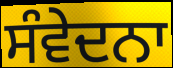
ਸੰਵੇਦਨਾ